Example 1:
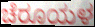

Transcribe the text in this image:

ಚೆರೂಯಳ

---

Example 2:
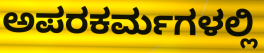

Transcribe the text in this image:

ಅಪರಕರ್ಮಗಳಲ್ಲಿ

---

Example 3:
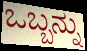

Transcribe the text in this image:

ಒಬ್ಬನ್ನು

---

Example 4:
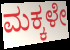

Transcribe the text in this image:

ಮಕ್ಕಳೇ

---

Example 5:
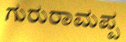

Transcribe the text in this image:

ಗುರುರಾಮಪ್ಪ